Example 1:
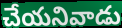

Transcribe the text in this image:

చేయనివాడు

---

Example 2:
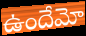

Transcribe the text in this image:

ఉందేమో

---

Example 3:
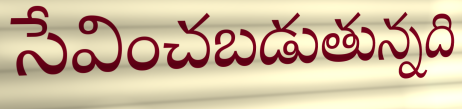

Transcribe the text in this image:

సేవించబడుతున్నది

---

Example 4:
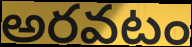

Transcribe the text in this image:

అరవటం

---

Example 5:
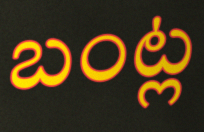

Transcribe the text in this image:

బంట్ల